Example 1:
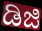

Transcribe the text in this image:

ಡಿಜಿ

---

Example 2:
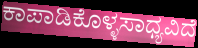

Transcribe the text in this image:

ಕಾಪಾಡಿಕೊಳ್ಳಸಾಧ್ಯವಿದೆ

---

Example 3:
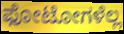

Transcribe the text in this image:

ಫೋಟೋಗಳೆಲ್ಲ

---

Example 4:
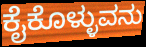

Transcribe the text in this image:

ಕೈಕೊಳ್ಳುವನು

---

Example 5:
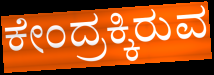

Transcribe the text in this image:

ಕೇಂದ್ರಕ್ಕಿರುವ